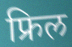
फ्रिल